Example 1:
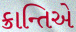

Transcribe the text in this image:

ક્રાન્તિએ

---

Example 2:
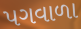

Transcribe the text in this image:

પગવાળા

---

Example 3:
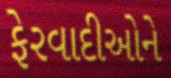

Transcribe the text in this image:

ફેરવાદીઓને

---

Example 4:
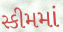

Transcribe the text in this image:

સ્કીમમાં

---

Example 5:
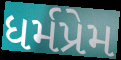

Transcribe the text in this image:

ધર્મપ્રેમ